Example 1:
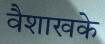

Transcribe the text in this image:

वैशाखके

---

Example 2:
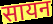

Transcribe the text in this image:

सायन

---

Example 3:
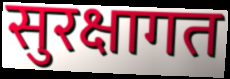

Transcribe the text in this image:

सुरक्षागत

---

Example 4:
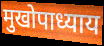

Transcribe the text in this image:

मुखोपाध्याय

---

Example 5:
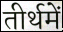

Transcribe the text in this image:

तीर्थमें